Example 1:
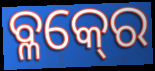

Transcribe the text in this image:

ବ୍ଳକ୍‍ରେ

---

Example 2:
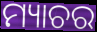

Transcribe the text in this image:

ମ୍ୟାଚର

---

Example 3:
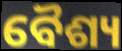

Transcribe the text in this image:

ବୈଶ୍ୟ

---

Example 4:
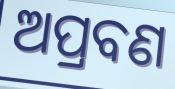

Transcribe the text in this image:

ଅପ୍ରବଣ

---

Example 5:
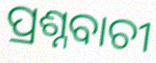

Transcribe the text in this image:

ପ୍ରଶ୍ନବାଚୀ